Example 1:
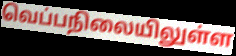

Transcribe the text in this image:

வெப்பநிலையிலுள்ள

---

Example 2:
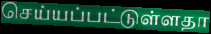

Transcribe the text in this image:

செய்யப்பட்டுள்ளதா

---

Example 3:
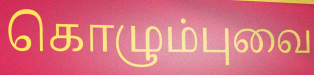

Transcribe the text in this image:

கொழும்புவை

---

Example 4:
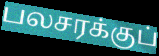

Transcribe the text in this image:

பலசரக்குப்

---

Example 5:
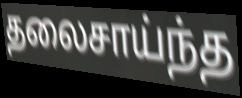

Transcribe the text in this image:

தலைசாய்ந்த